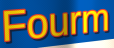
Fourm